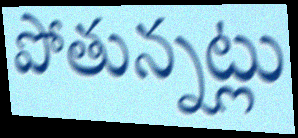
పోతున్నట్లు